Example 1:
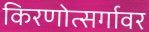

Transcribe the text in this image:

किरणोत्सर्गावर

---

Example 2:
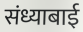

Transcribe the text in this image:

संध्याबाई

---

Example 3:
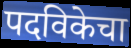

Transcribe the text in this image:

पदविकेचा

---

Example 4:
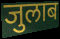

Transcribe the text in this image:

जुलाब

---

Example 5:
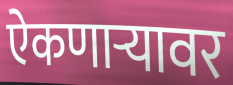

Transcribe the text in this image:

ऐकणाऱ्यावर